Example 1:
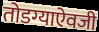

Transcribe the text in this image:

तोडग्याऐवजी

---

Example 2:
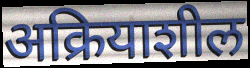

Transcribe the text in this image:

अक्रियाशील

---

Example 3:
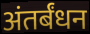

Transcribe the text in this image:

अंतर्बंधन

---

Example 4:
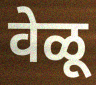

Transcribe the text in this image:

वेळू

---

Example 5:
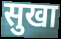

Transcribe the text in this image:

सुखा